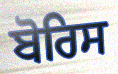
ਬੋਰਿਸ